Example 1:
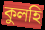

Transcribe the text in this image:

কুলহি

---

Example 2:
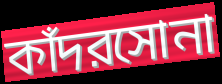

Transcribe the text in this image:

কাঁদরসোনা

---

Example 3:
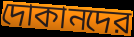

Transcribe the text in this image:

দোকানদের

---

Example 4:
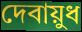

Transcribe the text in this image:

দেবায়ুধ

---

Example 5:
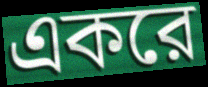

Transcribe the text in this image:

একরে